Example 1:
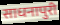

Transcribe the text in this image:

साधनापुरी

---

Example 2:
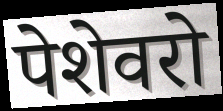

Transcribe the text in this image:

पेशेवरो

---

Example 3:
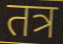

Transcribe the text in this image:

तत्र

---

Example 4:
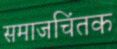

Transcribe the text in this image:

समाजचिंतक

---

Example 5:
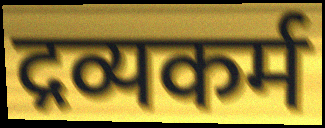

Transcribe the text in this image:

द्रव्यकर्म